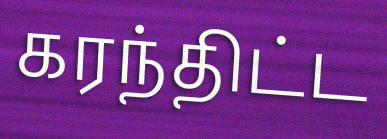
கரந்திட்ட